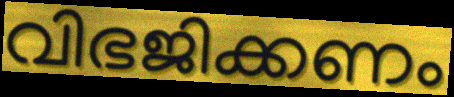
വിഭജിക്കണം